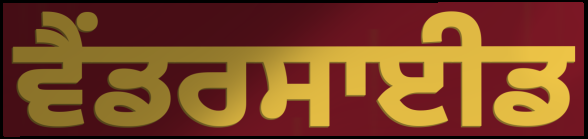
ਵੈਂਡਰਸਾਈਡ